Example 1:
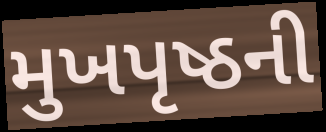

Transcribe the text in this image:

મુખપૃષ્ઠની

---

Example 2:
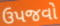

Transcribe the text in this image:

ઉપજવો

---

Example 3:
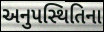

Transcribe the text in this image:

અનુપસ્થિતિના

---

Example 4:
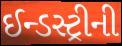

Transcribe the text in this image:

ઈન્ડસ્ટ્રીની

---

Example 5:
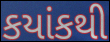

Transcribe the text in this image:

કયાંકથી